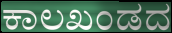
ಕಾಲಖಂಡದ